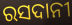
ରସଦାନୀ